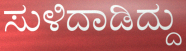
ಸುಳಿದಾಡಿದ್ದು